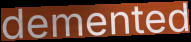
demented